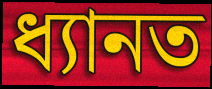
ধ্যানত